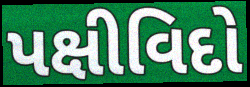
પક્ષીવિદો